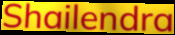
Shailendra